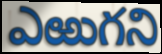
ఎఱుగని